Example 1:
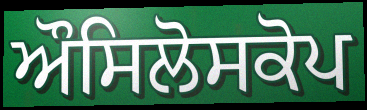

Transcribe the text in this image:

ਔਸਿਲੋਸਕੋਪ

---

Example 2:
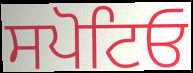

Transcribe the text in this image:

ਸਪੋਟਿਓ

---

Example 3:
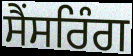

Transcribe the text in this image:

ਸੈਂਸਰਿੰਗ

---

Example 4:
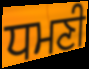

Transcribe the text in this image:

ਧਮਣੀ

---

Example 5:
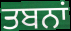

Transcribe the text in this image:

ਤਬਨਾਂ